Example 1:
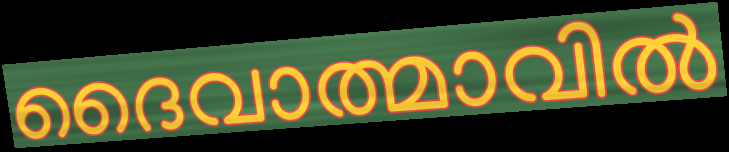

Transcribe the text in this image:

ദൈവാത്മാവിൽ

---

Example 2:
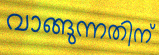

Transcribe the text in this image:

വാങ്ങുന്നതിന്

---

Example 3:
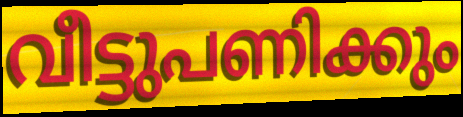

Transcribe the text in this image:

വീട്ടുപണിക്കും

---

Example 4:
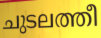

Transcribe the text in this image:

ചുടലത്തീ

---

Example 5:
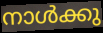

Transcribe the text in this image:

നാൾക്കു